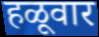
हळूवार